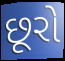
છૂરો